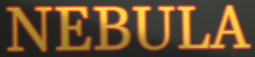
NEBULA